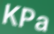
KPa